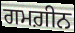
ਗਮਗ਼ੀਨ